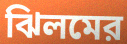
ঝিলমের